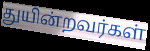
துயின்றவர்கள்